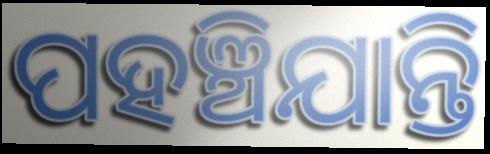
ପହଞ୍ଚିଯାନ୍ତି